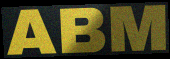
ABM